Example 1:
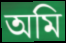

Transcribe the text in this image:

অমি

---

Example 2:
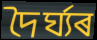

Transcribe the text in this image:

দৈৰ্ঘ্যৰ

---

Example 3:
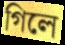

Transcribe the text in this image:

গিলে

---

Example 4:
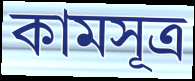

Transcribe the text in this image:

কামসূত্ৰ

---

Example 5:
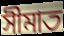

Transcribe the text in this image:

সীমাত